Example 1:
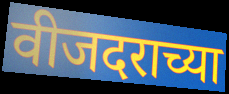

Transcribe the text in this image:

वीजदराच्या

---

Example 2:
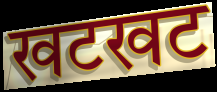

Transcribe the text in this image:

खटखट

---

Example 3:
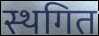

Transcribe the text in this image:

स्थगित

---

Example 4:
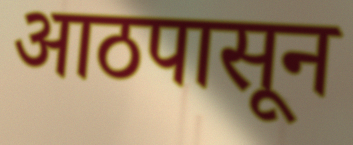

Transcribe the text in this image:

आठपासून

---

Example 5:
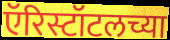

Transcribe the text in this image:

ऍरिस्टॉटलच्या